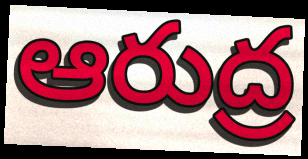
ఆరుద్ర